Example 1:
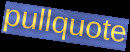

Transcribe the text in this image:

pullquote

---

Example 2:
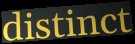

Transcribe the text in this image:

distinct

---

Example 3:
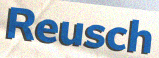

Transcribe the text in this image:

Reusch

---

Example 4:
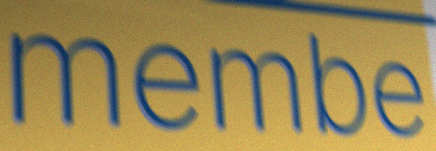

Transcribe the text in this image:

membe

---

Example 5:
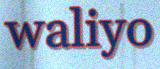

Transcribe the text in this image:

waliyo